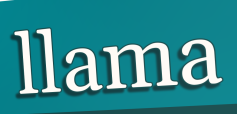
llama